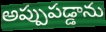
అప్పుపడ్డాను